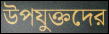
উপযুক্তদের